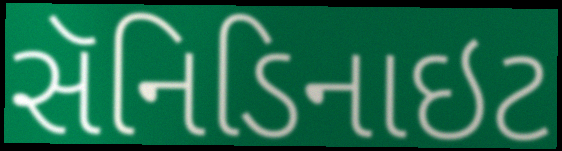
સૅનિડિનાઇટ